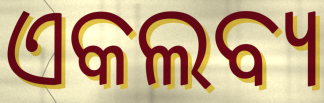
ଏକଲବ୍ୟ